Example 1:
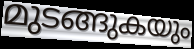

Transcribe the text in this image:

മുടങ്ങുകയും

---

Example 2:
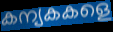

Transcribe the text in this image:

കന്യകകളെ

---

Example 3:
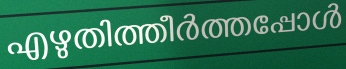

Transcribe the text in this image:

എഴുതിത്തീർത്തപ്പോൾ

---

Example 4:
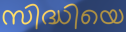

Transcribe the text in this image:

സിദ്ധിയെ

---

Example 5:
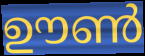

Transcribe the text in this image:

ഊൺ